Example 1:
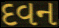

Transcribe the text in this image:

દવન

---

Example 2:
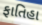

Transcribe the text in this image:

ફાતિહા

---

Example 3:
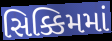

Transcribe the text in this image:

સિક્કિમમાં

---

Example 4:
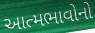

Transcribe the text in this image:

આત્મભાવોનો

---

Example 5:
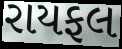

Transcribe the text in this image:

રાયફલ